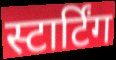
स्टार्टिंग